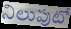
నిలుపుటో